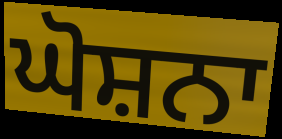
ਘੋਸ਼ਨਾ